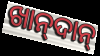
ଖାନ୍‍ଦାନ୍